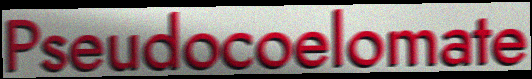
Pseudocoelomate